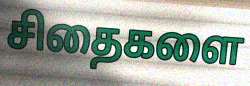
சிதைகளை